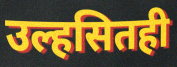
उल्हसितही